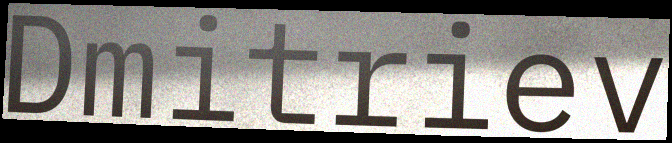
Dmitriev